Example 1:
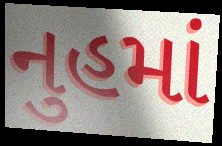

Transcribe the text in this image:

નુહમાં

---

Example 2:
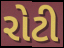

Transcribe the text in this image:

રોટી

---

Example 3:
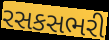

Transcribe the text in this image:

રસકસભરી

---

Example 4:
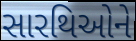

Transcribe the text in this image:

સારથિઓને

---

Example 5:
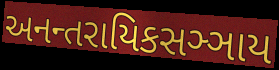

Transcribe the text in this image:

અનન્તરાયિકસઞ્ઞાય